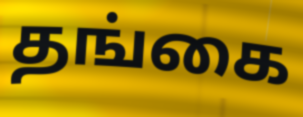
தங்கை